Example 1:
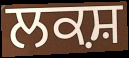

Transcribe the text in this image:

ਲਕ਼ਸ਼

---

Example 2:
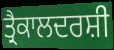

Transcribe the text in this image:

ਤ੍ਰੈਕਾਲਦਰਸ਼ੀ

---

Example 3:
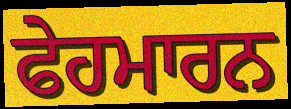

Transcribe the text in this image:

ਫੇਹਮਾਰਨ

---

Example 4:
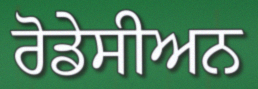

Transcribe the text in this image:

ਰੋਡੇਸੀਅਨ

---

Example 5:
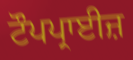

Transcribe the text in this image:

ਟੌਪਪ੍ਰਾਈਜ਼